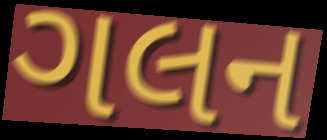
ગલન